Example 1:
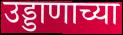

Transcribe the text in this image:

उड्डाणाच्या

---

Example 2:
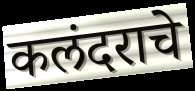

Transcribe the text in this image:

कलंदराचे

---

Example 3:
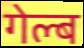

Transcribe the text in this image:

गेल्ब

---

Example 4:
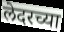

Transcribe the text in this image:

लेदरच्या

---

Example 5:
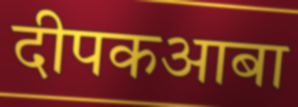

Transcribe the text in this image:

दीपकआबा